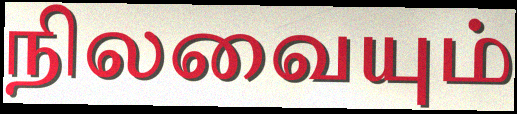
நிலவையும்